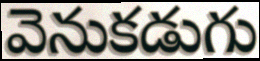
వెనుకడుగు